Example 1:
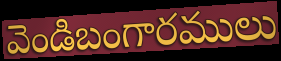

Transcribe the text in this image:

వెండిబంగారములు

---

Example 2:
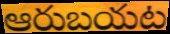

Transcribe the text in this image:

ఆరుబయట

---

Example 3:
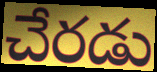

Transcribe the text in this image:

చేరడు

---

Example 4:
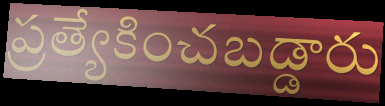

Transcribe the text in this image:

ప్రత్యేకించబడ్డారు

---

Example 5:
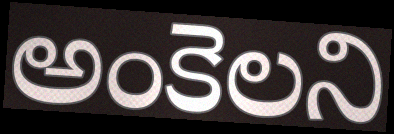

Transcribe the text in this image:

అంకెలని